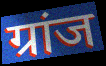
ग्रांज